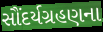
સૌંદર્યગ્રહણના